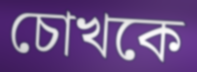
চোখকে